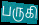
பருகி